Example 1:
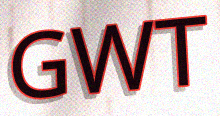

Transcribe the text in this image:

GWT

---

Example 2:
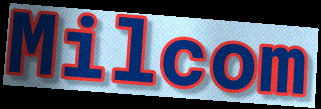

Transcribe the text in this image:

Milcom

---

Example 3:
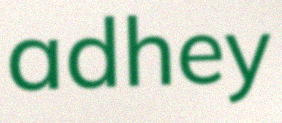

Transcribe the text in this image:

adhey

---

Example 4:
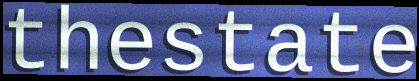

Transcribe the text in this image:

thestate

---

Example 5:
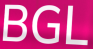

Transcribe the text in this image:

BGL